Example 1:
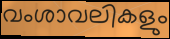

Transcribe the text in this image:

വംശാവലികളും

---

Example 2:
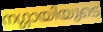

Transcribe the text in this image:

നഗ്ഗായിയുടെ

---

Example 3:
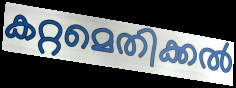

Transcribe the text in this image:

കറ്റമെതിക്കൽ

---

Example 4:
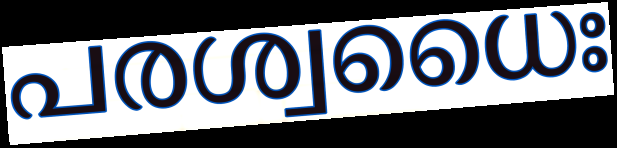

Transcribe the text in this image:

പരശ്വധൈഃ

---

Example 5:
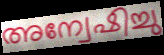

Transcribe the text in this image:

അന്വേഷിച്ചു